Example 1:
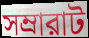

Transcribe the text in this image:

সম্রারাট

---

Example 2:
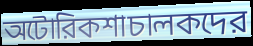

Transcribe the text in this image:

অটোরিকশাচালকদের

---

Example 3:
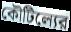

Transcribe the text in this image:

কৌটিল্যের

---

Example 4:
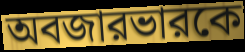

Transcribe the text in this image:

অবজারভারকে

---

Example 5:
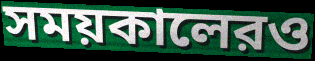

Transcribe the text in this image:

সময়কালেরও